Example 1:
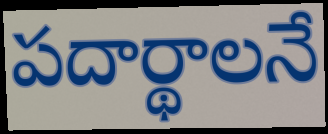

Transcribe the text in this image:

పదార్థాలనే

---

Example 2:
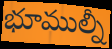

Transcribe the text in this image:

భూముల్నీ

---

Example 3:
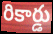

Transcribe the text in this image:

రికార్డు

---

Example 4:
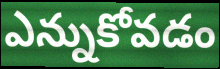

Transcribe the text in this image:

ఎన్నుకోవడం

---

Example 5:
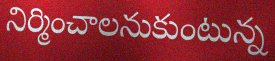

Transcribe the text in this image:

నిర్మించాలనుకుంటున్న